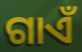
ଗାଏଁ